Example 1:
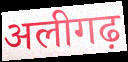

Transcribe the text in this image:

अलीगढ़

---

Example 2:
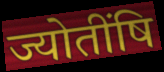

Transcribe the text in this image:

ज्योतींषि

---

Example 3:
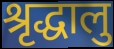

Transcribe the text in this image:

श्रृद्धालु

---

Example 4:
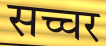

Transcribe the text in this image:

सच्चर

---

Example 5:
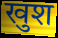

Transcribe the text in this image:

खुश